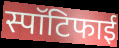
स्पॉटिफाई